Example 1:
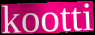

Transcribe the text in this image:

kootti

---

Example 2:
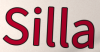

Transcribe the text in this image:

Silla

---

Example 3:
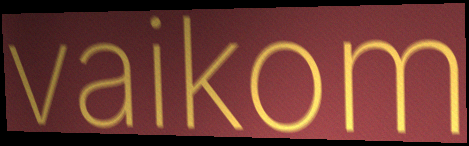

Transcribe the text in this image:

vaikom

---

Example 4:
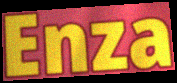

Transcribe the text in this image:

Enza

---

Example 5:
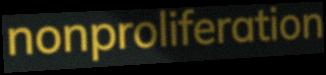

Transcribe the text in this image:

nonproliferation